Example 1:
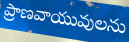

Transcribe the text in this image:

ప్రాణవాయువులను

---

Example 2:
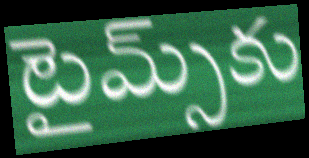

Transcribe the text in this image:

టైమ్స్‌కు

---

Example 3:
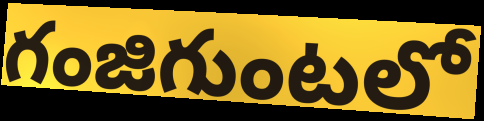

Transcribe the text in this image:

గంజిగుంటలో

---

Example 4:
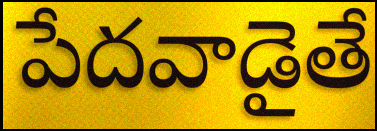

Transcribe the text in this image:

పేదవాడైతే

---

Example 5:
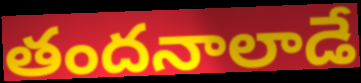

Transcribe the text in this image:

తందనాలాడే